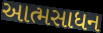
આત્મસાધન